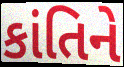
કાંતિને